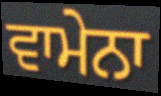
ਵਾਮੇਨਾ